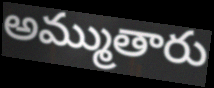
అమ్ముతారు